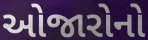
ઓજારોનો